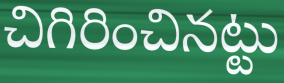
చిగిరించినట్టు